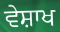
ਵੇਸ਼ਾਖ